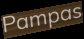
Pampas